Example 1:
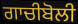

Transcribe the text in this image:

ਗਾਚੀਬੋਲੀ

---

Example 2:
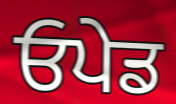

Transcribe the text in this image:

ਓਪੇਡ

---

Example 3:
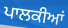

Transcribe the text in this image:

ਪਾਲਕੀਆਂ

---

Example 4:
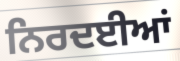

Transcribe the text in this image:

ਨਿਰਦਈਆਂ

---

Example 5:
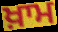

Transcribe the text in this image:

ਖ਼ਾਮ